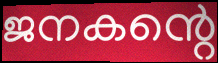
ജനകന്റെ